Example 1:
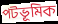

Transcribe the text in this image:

পটভূমিক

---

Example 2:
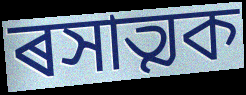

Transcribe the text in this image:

ৰসাত্মক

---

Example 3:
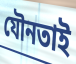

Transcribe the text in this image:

যৌনতাই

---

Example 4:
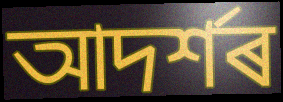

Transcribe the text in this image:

আদৰ্শৰ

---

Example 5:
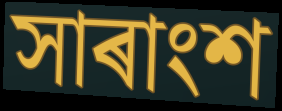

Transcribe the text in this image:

সাৰাংশ